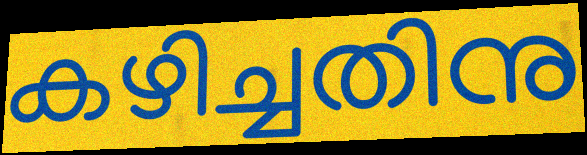
കഴിച്ചതിനു